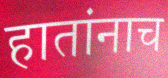
हातांनाच